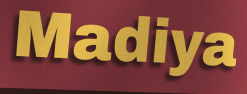
Madiya